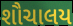
શૌચાલય